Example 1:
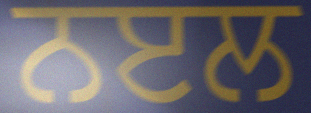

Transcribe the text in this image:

ਨੲਲ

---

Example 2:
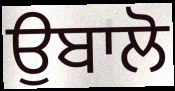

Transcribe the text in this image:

ਉਬਾਲੋ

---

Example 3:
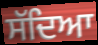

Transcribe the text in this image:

ਸੱਦਿਆ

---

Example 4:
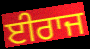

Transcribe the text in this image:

ਈਰਾਜ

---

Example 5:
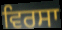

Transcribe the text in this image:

ਵਿਰਸਾ